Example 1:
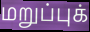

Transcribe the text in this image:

மறுப்புக்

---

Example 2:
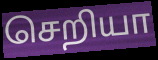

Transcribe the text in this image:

செறியா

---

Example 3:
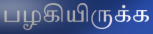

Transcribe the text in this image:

பழகியிருக்க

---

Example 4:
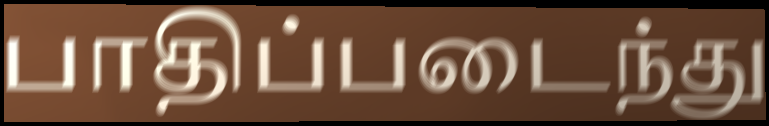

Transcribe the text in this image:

பாதிப்படைந்து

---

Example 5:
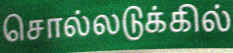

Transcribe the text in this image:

சொல்லடுக்கில்